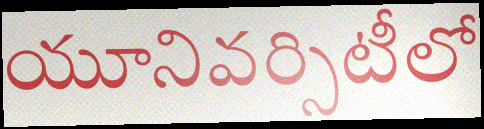
యూనివర్సిటీలో